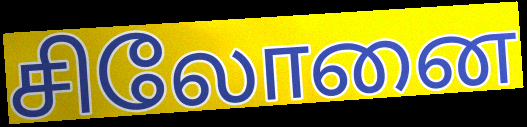
சிலோனை